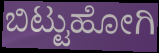
ಬಿಟ್ಟುಹೋಗಿ